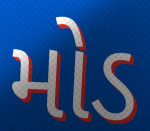
મોડ